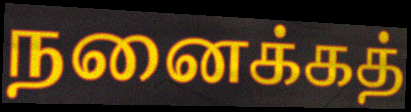
நனைக்கத்